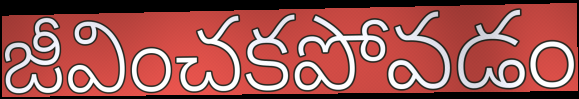
జీవించకపోవడం